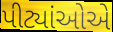
પીટ્યાંઓએ